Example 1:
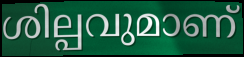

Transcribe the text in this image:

ശില്പവുമാണ്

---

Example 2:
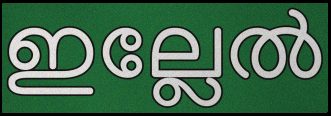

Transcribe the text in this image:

ഇല്ലേൽ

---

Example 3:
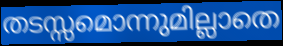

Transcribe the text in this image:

തടസ്സമൊന്നുമില്ലാതെ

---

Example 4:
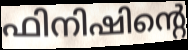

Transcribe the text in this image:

ഫിനിഷിന്റെ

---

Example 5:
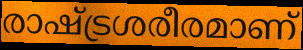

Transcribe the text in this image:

രാഷ്ട്രശരീരമാണ്